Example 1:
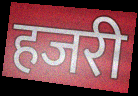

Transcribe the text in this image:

हजरी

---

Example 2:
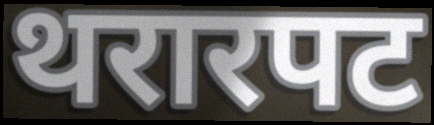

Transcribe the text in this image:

थरारपट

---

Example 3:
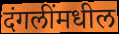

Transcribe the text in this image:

दंगलींमधील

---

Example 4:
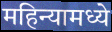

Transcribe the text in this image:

महिन्यामध्ये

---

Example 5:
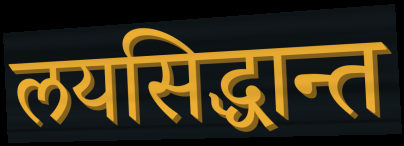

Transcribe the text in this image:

लयसिद्धान्त